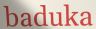
baduka